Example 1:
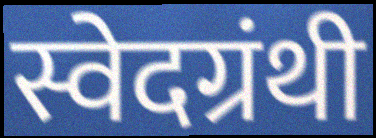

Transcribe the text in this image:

स्वेदग्रंथी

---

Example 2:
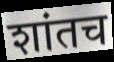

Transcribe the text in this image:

शांतच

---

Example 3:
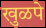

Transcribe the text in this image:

खुळपे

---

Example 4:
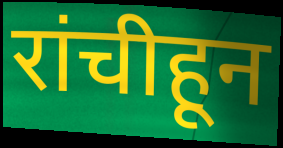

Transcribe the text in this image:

रांचीहून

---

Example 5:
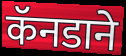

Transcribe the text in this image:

कॅनडाने